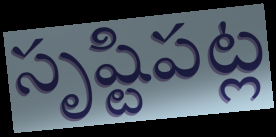
సృష్టిపట్ల